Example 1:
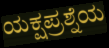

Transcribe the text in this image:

ಯಕ್ಷಪ್ರಶ್ನೆಯ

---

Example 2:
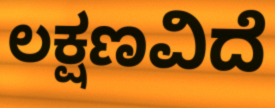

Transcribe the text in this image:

ಲಕ್ಷಣವಿದೆ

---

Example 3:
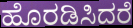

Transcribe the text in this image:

ಹೊರಡಿಸಿದರೆ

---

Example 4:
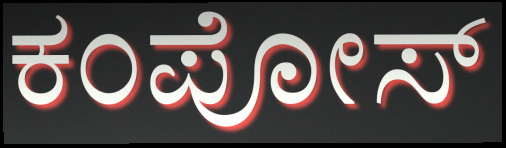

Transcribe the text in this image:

ಕಂಪೋಸ್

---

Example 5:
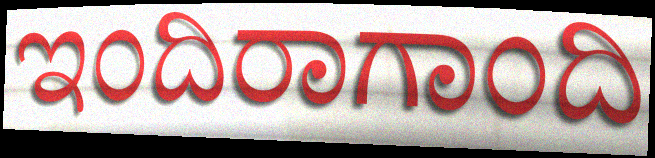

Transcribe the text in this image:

ಇಂದಿರಾಗಾಂದಿ